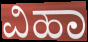
ವಿಹಾ